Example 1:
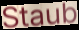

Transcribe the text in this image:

Staub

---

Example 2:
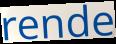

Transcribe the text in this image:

rende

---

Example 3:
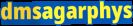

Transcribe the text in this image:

dmsagarphys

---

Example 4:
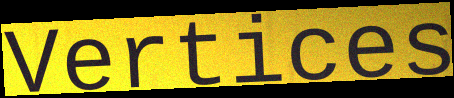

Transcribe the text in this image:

Vertices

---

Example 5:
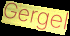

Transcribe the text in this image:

Gergel